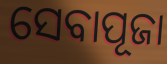
ସେବାପୂଜା